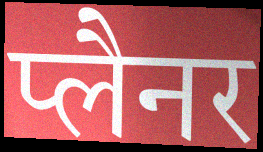
प्लैनर